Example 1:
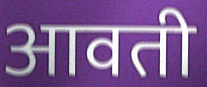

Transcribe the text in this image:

आवती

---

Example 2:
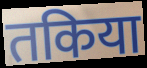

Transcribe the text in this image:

तकिया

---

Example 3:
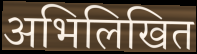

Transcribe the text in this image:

अभिलिखित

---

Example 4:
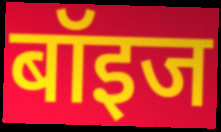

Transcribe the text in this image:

बॉइज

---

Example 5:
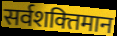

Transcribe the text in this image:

सर्वशक्‍तिमान